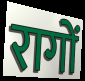
रागों